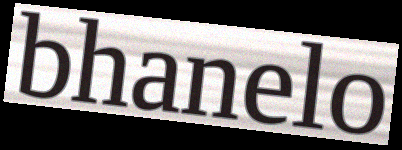
bhanelo